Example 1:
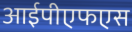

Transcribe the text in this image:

आईपीएफएस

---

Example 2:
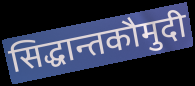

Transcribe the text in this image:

सिद्धान्तकौमुदी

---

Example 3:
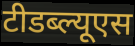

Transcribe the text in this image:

टीडब्ल्यूएस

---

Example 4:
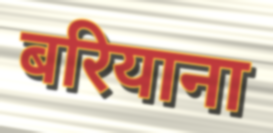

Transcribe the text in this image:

बरियाना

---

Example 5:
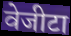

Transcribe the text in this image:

वेजीटा